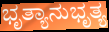
ಭೃತ್ಯಾನುಭೃತ್ಯ